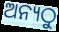
ଅନ୍ୟଠୁ